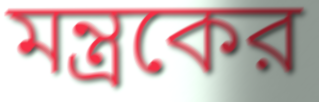
মন্ত্রকের